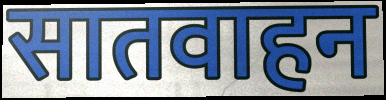
सातवाहन